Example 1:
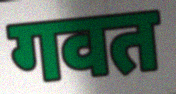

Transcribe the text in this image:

गवत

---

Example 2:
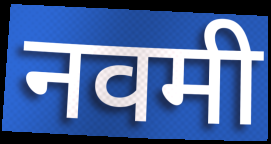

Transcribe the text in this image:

नवमी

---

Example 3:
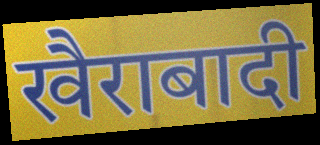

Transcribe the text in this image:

खैराबादी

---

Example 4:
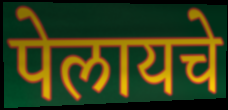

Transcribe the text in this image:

पेलायचे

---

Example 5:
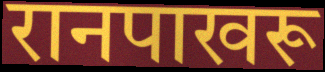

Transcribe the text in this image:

रानपाखरू